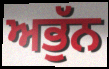
ਅਭੁੱਨ